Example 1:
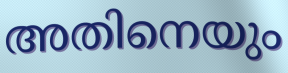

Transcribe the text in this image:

അതിനെയും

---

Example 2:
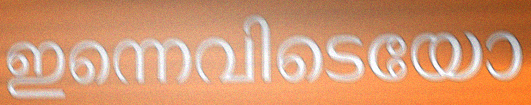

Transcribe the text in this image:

ഇന്നെവിടെയോ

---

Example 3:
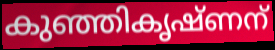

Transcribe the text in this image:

കുഞ്ഞികൃഷ്ണന്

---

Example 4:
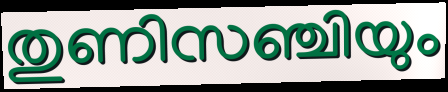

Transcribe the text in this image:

തുണിസഞ്ചിയും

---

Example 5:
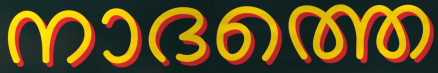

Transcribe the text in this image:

നാദത്തെ